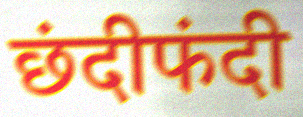
छंदीफंदी